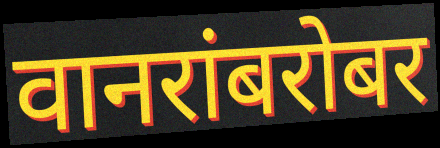
वानरांबरोबर